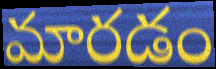
మారడం